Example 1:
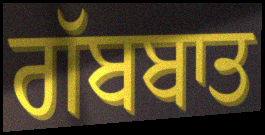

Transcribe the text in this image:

ਗੱਬਬਾਤ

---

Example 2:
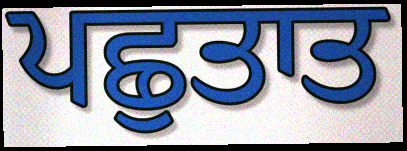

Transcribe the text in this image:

ਪਛੁਤਾਤ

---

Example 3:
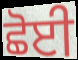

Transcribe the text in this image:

ਛੋਈ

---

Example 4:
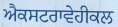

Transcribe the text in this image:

ਐਕਸਟਰਾਵੇਹੀਕਲ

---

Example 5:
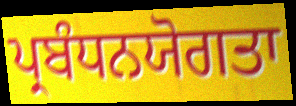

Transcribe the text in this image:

ਪ੍ਰਬੰਧਨਯੋਗਤਾ